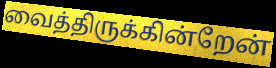
வைத்திருக்கின்றேன்